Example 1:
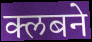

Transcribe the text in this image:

क्लबने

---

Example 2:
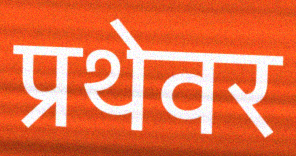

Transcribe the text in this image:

प्रथेवर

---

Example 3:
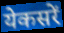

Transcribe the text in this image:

येकसरें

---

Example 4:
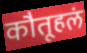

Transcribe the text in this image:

कौतूहलं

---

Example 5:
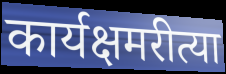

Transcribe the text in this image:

कार्यक्षमरीत्या